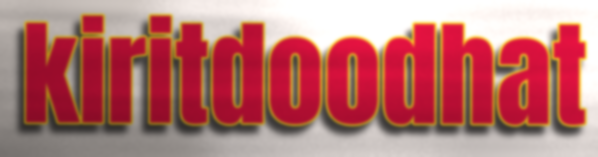
kiritdoodhat